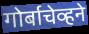
गोर्बाचेव्हने